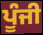
ਪੂੰਜੀ